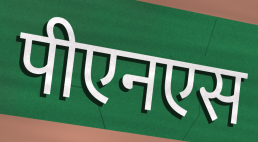
पीएनएस